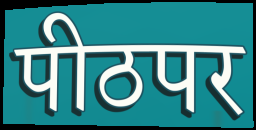
पीठपर